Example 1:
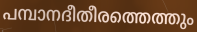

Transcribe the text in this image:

പമ്പാനദീതീരത്തെത്തും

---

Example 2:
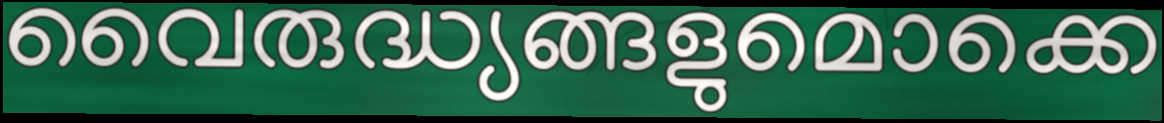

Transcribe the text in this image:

വൈരുദ്ധ്യങ്ങളുമൊക്കെ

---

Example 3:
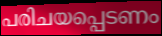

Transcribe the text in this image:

പരിചയപ്പെടണം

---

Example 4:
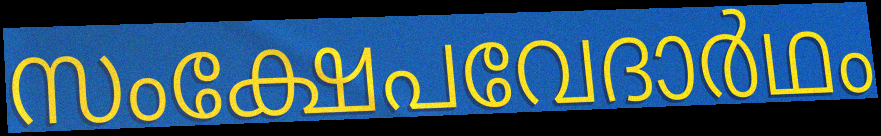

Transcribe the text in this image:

സംക്ഷേപവേദാർഥം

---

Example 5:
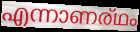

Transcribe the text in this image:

എന്നാണര്ഥം